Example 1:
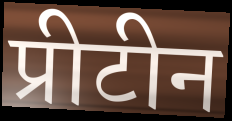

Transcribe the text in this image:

प्रीटीन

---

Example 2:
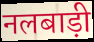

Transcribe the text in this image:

नलबाड़ी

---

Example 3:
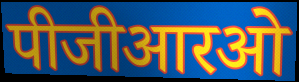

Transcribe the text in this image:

पीजीआरओ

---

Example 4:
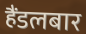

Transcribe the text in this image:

हैंडलबार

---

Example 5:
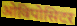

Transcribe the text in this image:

ओविपोसिटर